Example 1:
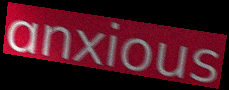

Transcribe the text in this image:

anxious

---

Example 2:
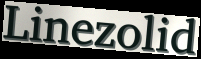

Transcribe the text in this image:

Linezolid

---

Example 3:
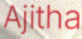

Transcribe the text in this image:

Ajitha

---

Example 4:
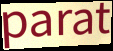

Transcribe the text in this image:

parat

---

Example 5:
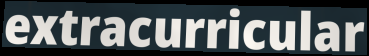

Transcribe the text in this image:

extracurricular